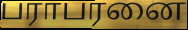
பராபரனை